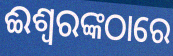
ଈଶ୍ୱରଙ୍କଠାରେ